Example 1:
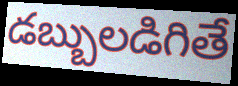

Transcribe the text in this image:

డబ్బులడిగితే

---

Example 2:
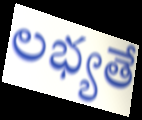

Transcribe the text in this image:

లభ్యతే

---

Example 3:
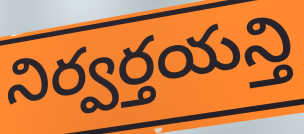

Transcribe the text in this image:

నిర్వర్తయన్తి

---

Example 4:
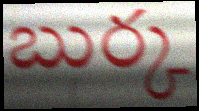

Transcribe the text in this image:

బుర్క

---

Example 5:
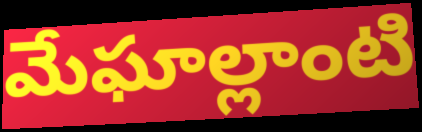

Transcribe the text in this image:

మేఘాల్లాంటి